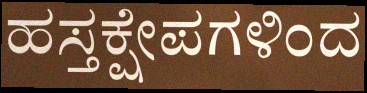
ಹಸ್ತಕ್ಷೇಪಗಳಿಂದ